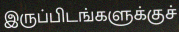
இருப்பிடங்களுக்குச்